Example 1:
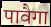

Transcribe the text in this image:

पावैगा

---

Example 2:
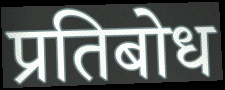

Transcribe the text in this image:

प्रतिबोध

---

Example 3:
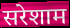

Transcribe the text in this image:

सरेशाम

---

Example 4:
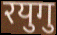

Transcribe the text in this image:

रयुगु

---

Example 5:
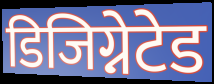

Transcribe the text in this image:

डिजिग्नेटेड